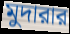
মুদারার